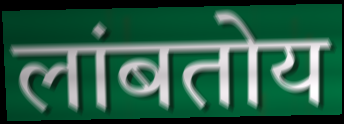
लांबतोय